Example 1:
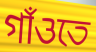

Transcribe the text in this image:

গাঁওতে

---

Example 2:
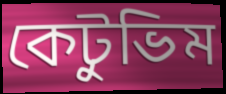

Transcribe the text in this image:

কেটুভিম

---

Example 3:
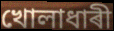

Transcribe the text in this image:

খোলাধাৰী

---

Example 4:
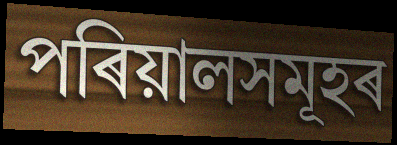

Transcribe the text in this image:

পৰিয়ালসমূহৰ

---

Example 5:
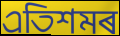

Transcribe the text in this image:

এতিশমৰ